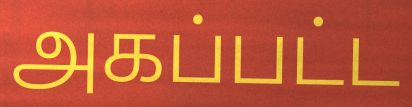
அகப்பட்ட